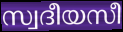
സ്വദീയസീ